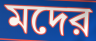
মদের